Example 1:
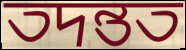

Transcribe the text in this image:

তদন্তত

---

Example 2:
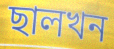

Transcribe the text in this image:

ছালখন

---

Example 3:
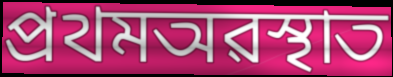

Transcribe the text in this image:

প্ৰথমঅৱস্থাত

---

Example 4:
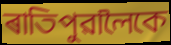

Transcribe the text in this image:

ৰাতিপুৱালৈকে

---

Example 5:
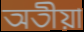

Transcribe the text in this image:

অতীয়া